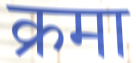
क्रमा